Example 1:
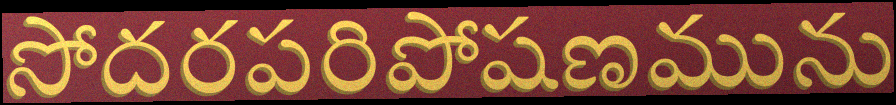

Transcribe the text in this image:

సోదరపరిపోషణమును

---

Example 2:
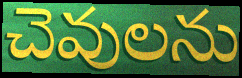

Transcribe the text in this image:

చెవులను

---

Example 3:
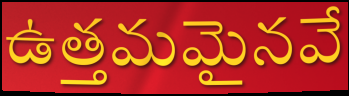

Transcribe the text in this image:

ఉత్తమమైనవే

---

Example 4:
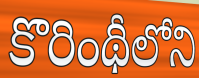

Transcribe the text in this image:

కొరింథీలోని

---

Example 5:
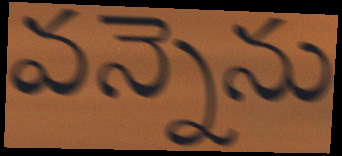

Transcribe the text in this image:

వన్నెను